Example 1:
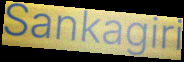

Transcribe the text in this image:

Sankagiri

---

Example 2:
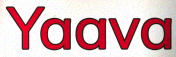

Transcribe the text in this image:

Yaava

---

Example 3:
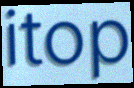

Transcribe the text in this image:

itop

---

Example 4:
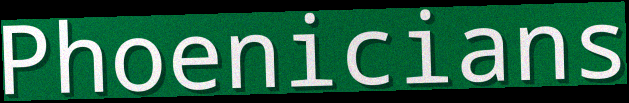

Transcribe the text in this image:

Phoenicians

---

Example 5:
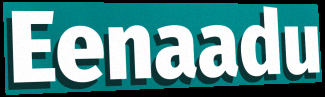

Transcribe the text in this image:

Eenaadu